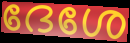
ദേശേ